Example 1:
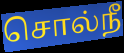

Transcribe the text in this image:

சொல்நீ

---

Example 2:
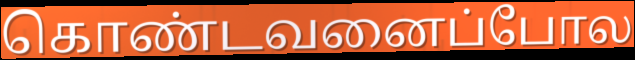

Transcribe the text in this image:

கொண்டவனைப்போல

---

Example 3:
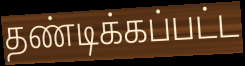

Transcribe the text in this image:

தண்டிக்கப்பட்ட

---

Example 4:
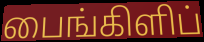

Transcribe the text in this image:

பைங்கிளிப்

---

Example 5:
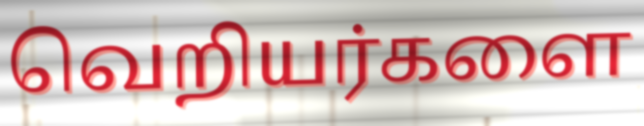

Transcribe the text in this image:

வெறியர்களை